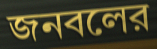
জনবলের